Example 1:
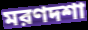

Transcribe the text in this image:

মরণদশা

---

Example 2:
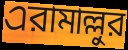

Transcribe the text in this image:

এরামাল্লুর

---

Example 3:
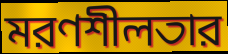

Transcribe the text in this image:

মরণশীলতার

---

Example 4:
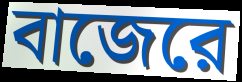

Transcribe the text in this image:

বাজেরে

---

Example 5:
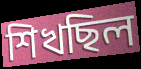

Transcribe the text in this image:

শিখছিল